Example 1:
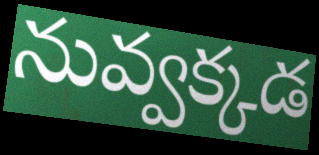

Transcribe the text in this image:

నువ్వక్కడ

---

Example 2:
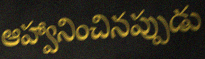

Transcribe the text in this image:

ఆహ్వానించినప్పుడు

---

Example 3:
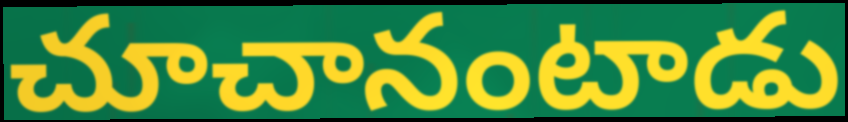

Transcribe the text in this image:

చూచానంటాడు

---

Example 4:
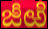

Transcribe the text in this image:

జీఱి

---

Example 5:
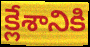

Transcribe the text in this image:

క్లేశానికి